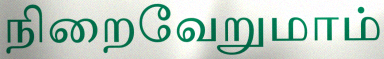
நிறைவேறுமாம்